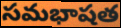
సమభాషత